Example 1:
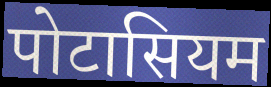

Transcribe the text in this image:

पोटासियम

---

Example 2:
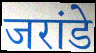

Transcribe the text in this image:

जरांडे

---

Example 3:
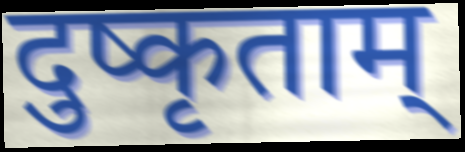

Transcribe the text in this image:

दुष्कृताम्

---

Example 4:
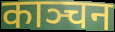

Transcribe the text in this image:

काञ्चन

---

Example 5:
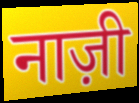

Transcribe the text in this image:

नाज़ी